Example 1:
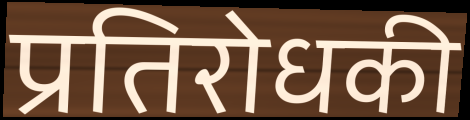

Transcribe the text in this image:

प्रतिरोधकी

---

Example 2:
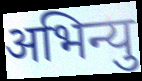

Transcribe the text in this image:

अभिन्यु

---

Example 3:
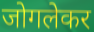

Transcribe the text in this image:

जोगलेकर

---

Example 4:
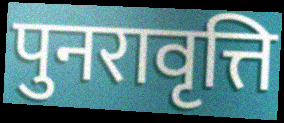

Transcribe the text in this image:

पुनरावृत्ति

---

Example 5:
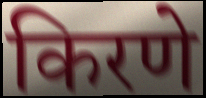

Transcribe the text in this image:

किरणे